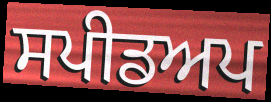
ਸਪੀਡਅਪ